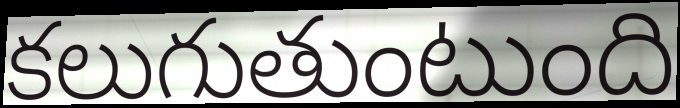
కలుగుతుంటుంది